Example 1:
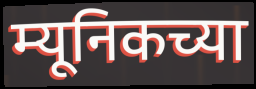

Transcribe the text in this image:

म्यूनिकच्या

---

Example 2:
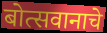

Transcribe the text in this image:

बोत्सवानाचे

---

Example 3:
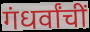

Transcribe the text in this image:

गंधर्वांचीं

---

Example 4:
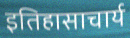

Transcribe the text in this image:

इतिहासाचार्य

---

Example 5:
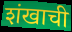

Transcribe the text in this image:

शंखाची